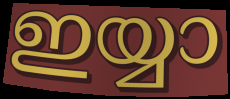
ഇയ്യാ